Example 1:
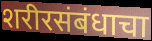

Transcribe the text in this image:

शरीरसंबंधाचा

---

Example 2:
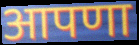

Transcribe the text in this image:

आपणा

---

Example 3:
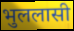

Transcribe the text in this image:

भुललासी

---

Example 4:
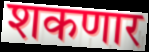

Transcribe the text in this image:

शकणार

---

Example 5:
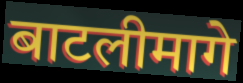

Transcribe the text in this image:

बाटलीमागे